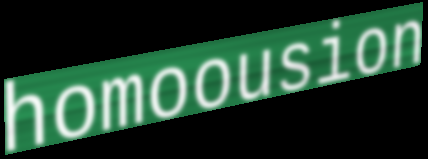
homoousion